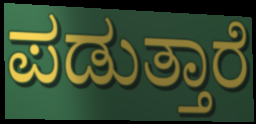
ಪಡುತ್ತಾರೆ